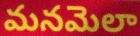
మనమెలా